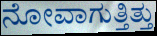
ನೋವಾಗುತ್ತಿತ್ತು